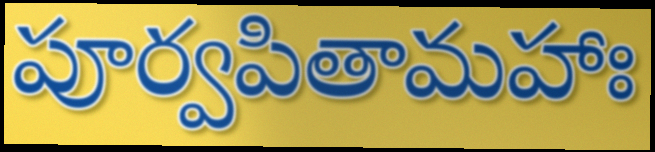
పూర్వపితామహాః